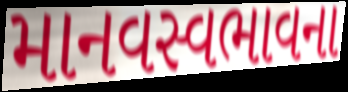
માનવસ્વભાવના